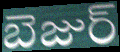
బెజుర్